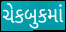
ચેકબુકમાં